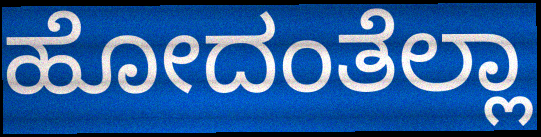
ಹೋದಂತೆಲ್ಲಾ